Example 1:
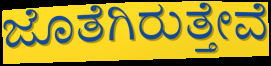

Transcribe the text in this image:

ಜೊತೆಗಿರುತ್ತೇವೆ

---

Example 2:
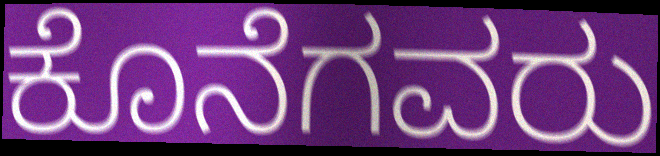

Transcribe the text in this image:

ಕೊನೆಗವರು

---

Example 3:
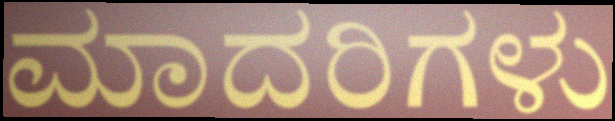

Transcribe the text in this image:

ಮಾದರಿಗಳು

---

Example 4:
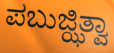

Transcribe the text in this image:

ಪಬುಜ್ಝಿತ್ವಾ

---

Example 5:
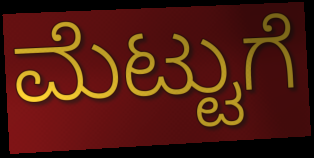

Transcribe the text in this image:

ಮೆಟ್ಟುಗೆ